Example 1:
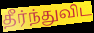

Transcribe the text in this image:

தீர்ந்துவிட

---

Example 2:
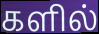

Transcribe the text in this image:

களில்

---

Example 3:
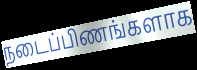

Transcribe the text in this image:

நடைப்பிணங்களாக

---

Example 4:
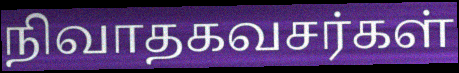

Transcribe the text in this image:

நிவாதகவசர்கள்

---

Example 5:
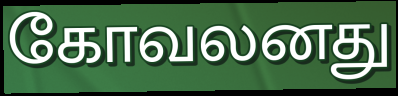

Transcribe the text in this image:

கோவலனது